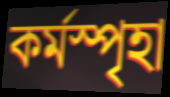
কর্মস্পৃহা